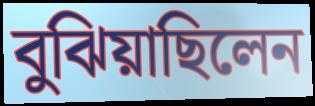
বুঝিয়াছিলেন